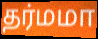
தர்மமா